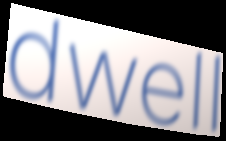
dwell